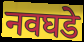
नवघडे